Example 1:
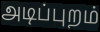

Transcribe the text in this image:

அடிப்புறம்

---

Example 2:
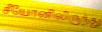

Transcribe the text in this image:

சீயோனிலிருந்து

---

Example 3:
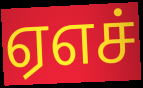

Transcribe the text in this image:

ஏஎச்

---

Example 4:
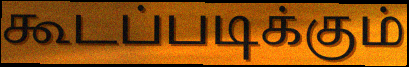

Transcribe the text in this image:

கூடப்படிக்கும்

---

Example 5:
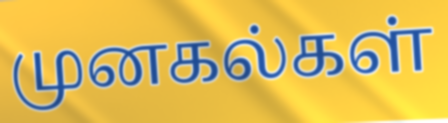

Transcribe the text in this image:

முனகல்கள்